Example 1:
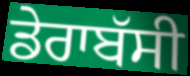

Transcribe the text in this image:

ਡੇਰਾਬੱਸੀ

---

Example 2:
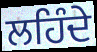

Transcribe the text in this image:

ਲਹਿੰਦੇ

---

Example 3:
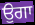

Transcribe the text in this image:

ਉਗਾ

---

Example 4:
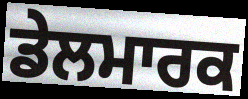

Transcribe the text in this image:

ਡੇਲਮਾਰਕ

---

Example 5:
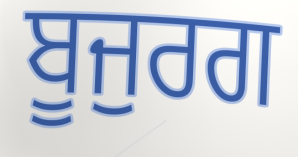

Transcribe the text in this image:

ਬੂਜੁਰਗ